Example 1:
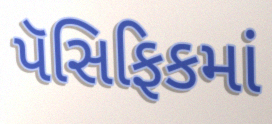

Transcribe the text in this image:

પૅસિફિકમાં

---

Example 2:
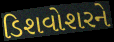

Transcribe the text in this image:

ડિશવોશરને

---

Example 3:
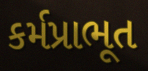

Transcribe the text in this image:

કર્મપ્રાભૂત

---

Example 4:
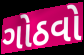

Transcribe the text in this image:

ગોઠવો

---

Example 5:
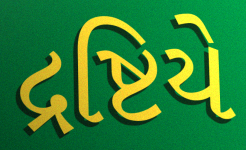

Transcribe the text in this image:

દ્રષ્ટિયે